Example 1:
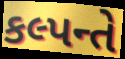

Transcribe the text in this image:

કલ્પન્તે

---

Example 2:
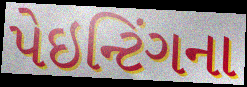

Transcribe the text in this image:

પેઇન્ટિંગના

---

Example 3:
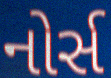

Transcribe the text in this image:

નોર્સ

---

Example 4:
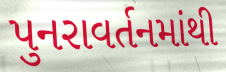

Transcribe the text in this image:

પુનરાવર્તનમાંથી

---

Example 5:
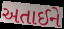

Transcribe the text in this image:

અતાઈને